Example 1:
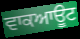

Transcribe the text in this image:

ਵਾਕਆਊਟ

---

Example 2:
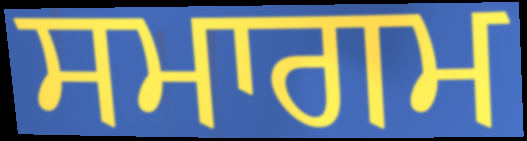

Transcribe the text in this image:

ਸਮਾਗਮ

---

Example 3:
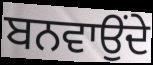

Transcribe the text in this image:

ਬਨਵਾਉਂਦੇ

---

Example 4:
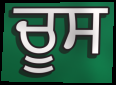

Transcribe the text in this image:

ਚੂਸ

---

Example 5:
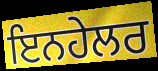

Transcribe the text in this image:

ਇਨਹੇਲਰ